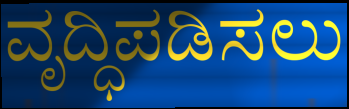
ವೃದ್ಧಿಪಡಿಸಲು